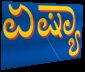
ಏಷ್ಯಾ